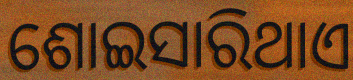
ଶୋଇସାରିଥାଏ